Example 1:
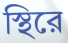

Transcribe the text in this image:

স্থিরে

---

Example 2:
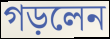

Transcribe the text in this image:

গড়লেন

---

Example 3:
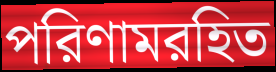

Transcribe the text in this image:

পরিণামরহিত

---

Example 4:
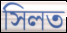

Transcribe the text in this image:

সিলত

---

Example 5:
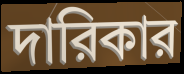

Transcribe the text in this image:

দারিকার